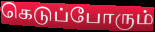
கெடுப்போரும்